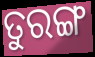
ତୁରଙ୍ଗ